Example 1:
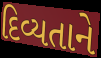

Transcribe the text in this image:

દિવ્યતાને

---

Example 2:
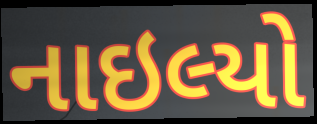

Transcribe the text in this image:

નાઇલ્યો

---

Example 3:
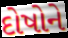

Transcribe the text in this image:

દોષોને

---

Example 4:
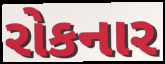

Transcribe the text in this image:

રોકનાર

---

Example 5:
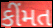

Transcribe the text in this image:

કીંમત